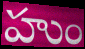
హుం